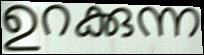
ഉറക്കുന്ന